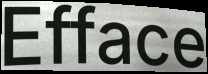
Efface